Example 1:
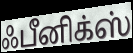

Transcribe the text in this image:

ஃபீனிக்ஸ்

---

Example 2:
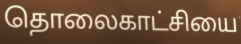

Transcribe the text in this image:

தொலைகாட்சியை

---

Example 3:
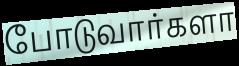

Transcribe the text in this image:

போடுவார்களா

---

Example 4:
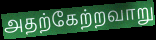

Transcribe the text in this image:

அதற்கேற்றவாறு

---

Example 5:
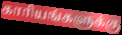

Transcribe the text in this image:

காரியங்களுக்கு